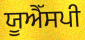
ਯੂਐੱਸਪੀ